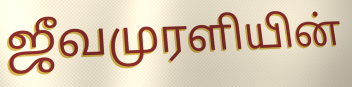
ஜீவமுரளியின்